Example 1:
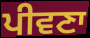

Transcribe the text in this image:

ਪੀਵਣਾ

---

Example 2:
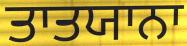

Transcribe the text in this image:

ਤਾਤਯਾਨਾ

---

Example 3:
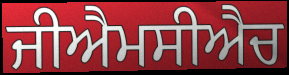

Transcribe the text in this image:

ਜੀਐਮਸੀਐਚ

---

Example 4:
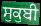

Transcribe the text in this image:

ਸੁਕੁਬੀ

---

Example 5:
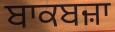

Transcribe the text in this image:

ਬਾਕਬਜ਼ਾ